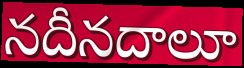
నదీనదాలూ